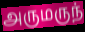
அருமருந்